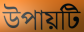
উপায়টি